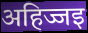
अहिज्जइ